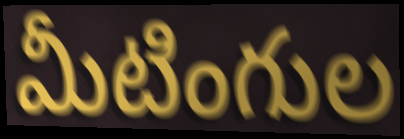
మీటింగుల